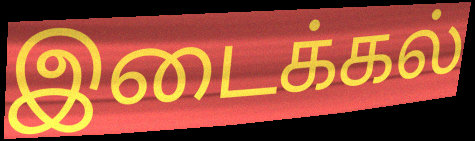
இடைக்கல்